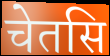
चेतसि